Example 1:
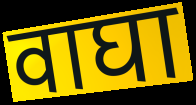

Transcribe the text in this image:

वाघा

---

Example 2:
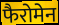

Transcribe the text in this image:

फैरोमेन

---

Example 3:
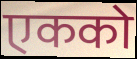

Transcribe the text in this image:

एकको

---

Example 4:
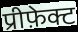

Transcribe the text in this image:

प्रीफ़ेक्ट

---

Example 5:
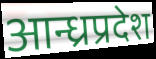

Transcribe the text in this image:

आन्ध्रप्रदेश